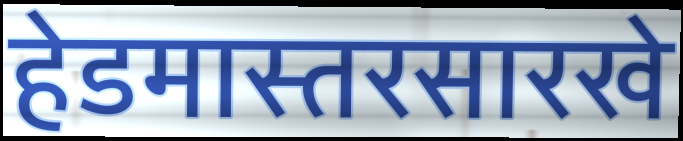
हेडमास्तरसारखे